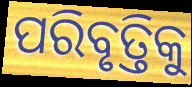
ପରିବୃତ୍ତିକୁ